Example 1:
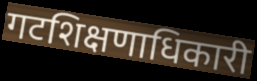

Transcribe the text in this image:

गटशिक्षणाधिकारी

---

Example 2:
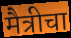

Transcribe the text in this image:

मैत्रीचा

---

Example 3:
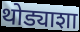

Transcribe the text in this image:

थोड्याशा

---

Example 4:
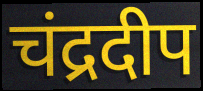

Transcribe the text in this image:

चंद्रदीप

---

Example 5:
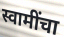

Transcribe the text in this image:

स्वामींचा